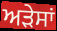
ਅੜੇਸਾਂ